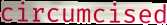
circumcised